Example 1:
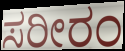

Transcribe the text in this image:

ಸರೀರಂ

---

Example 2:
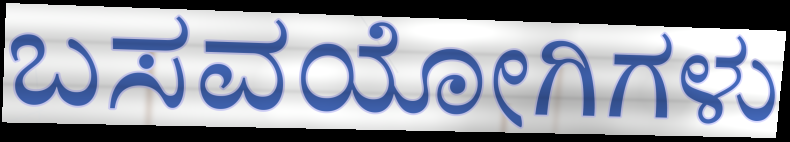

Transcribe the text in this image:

ಬಸವಯೋಗಿಗಳು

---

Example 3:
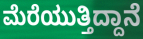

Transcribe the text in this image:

ಮೆರೆಯುತ್ತಿದ್ದಾನೆ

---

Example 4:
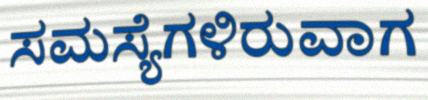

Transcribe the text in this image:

ಸಮಸ್ಯೆಗಳಿರುವಾಗ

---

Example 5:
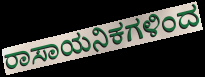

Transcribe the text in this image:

ರಾಸಾಯನಿಕಗಳಿಂದ